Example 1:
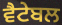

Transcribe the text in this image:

ਵੈਟੇਬਲ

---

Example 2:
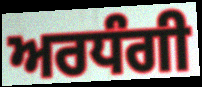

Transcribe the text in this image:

ਅਰਧੰਗੀ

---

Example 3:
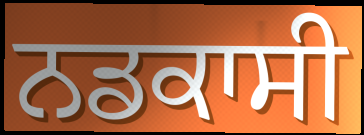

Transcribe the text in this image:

ਨਡਕਾਸੀ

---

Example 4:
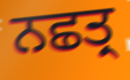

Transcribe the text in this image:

ਨਛਤ੍ਰ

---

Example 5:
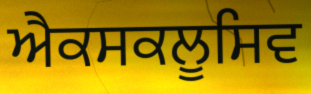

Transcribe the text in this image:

ਐਕਸਕਲੂਸਿਵ